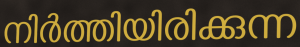
നിർത്തിയിരിക്കുന്ന